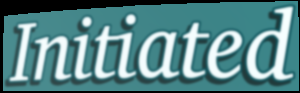
Initiated